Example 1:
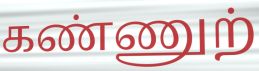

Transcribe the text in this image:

கண்ணுற்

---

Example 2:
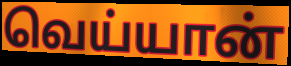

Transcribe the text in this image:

வெய்யான்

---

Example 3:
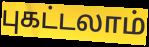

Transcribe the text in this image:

புகட்டலாம்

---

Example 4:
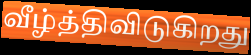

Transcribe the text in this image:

வீழ்த்திவிடுகிறது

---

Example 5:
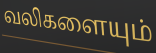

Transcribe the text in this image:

வலிகளையும்